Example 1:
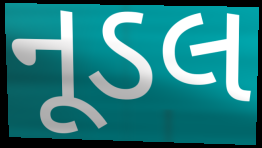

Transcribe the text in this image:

નૂડલ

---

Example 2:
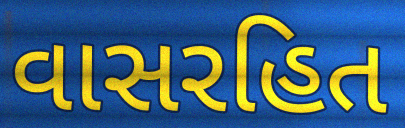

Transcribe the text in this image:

વાસરહિત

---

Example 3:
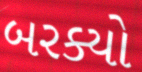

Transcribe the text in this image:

બરક્યો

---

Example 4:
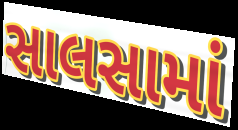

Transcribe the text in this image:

સાલસામાં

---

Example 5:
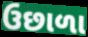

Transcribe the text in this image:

ઉછાળા